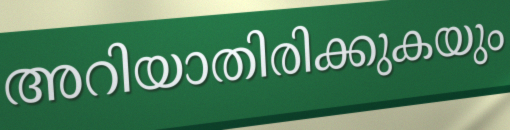
അറിയാതിരിക്കുകയും